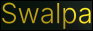
Swalpa